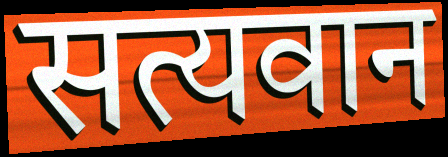
सत्यवान